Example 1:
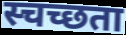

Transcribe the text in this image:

स्चच्छता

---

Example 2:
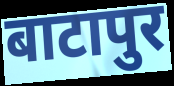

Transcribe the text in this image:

बाटापुर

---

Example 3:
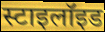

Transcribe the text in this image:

स्टाइलॉइड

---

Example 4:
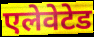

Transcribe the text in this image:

एलेवेटेड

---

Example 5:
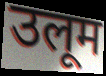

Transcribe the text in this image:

उलूम